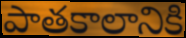
పాతకాలానికి